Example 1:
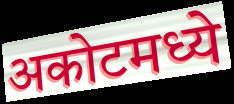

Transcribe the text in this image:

अकोटमध्ये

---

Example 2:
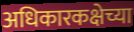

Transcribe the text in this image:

अधिकारकक्षेच्या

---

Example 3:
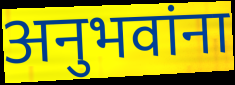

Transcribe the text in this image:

अनुभवांना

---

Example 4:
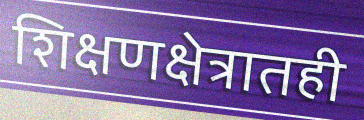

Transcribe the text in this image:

शिक्षणक्षेत्रातही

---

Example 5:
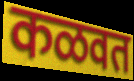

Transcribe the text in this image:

कळवत